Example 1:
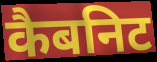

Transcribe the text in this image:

कैबनिट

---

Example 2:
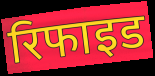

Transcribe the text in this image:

रिफाइड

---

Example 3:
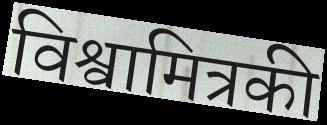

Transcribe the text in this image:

विश्वामित्रकी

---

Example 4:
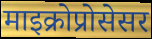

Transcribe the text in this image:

माइक्रोप्रोसेसर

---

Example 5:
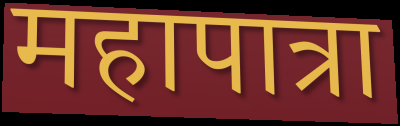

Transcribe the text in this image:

महापात्रा